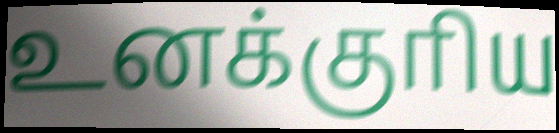
உனக்குரிய